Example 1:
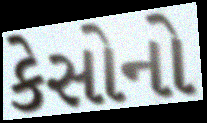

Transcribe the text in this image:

કેસોનો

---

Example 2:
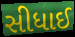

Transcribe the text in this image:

સીધાઈ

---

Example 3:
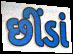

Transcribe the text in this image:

છીંડાં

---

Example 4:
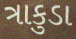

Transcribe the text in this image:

ત્રાકુડા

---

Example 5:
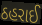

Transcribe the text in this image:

ઠહરાઈ